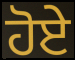
ਹੋਏੇ